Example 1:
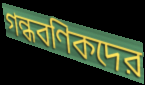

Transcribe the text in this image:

গন্ধবণিকদের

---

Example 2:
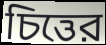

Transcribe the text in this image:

চিত্তের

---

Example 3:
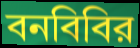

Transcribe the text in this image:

বনবিবির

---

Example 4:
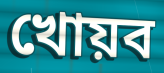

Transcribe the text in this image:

খোয়ব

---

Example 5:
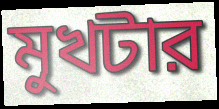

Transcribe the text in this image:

মুখটার